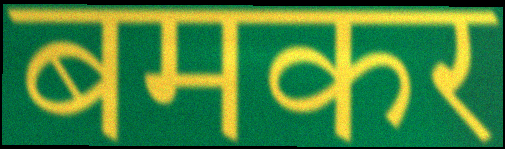
बमकर